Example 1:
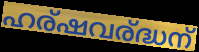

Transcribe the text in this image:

ഹര്ഷവര്ദ്ധന്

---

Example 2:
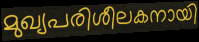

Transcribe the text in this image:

മുഖ്യപരിശീലകനായി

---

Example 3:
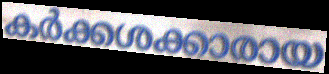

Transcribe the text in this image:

കർക്കശക്കാരായ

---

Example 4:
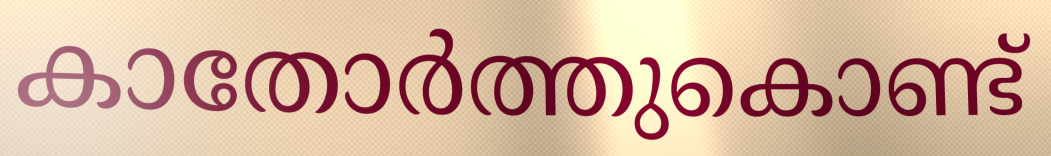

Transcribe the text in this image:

കാതോർത്തുകൊണ്ട്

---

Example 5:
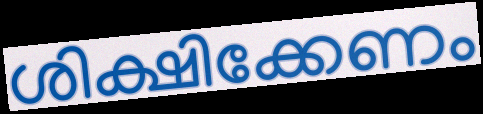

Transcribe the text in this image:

ശിക്ഷിക്കേണം